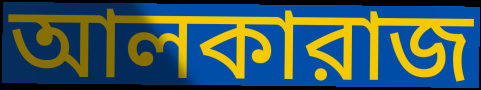
আলকারাজ